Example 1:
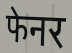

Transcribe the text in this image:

फेनर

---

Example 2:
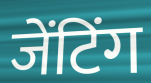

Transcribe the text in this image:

जेंटिंग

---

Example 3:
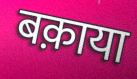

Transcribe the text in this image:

बक़ाया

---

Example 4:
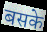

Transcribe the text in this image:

बसके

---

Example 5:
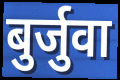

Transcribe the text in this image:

बुर्जुवा